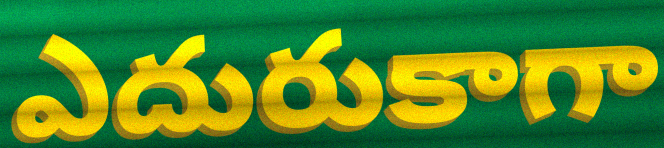
ఎదురుకాగా